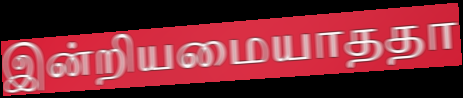
இன்றியமையாததா